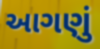
આગણું